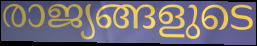
രാജ്യങ്ങളുടെ